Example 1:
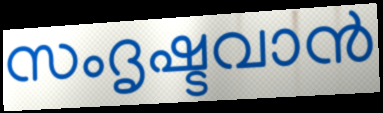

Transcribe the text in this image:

സംദൃഷ്ടവാൻ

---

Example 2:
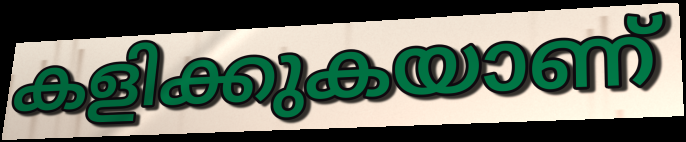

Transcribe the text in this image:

കളിക്കുകയാണ്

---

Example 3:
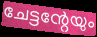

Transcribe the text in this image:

ചേട്ടന്റേയും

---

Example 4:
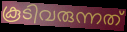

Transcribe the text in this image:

കൂടിവരുന്നത്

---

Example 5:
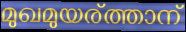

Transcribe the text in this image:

മുഖമുയര്ത്താന്